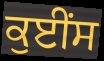
ਕੁਈਂਸ